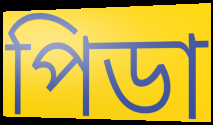
পিডা